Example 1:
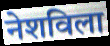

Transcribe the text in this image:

नेशविला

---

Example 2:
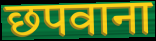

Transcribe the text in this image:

छपवाना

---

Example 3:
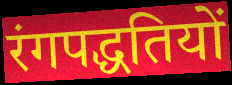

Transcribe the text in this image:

रंगपद्धतियों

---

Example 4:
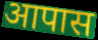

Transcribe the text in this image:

आपास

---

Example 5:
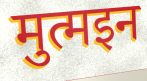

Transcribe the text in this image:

मुत्मइन